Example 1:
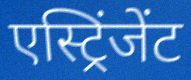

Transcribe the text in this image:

एस्ट्रिंजेंट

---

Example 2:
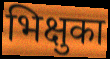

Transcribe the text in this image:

भिक्षुका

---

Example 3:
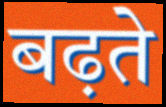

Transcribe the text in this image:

बढ़ते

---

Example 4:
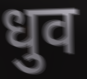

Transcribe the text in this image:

धुव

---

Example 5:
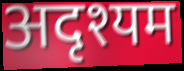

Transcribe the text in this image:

अदृश्यम